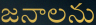
జనాలను